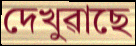
দেখুৱাছে